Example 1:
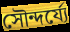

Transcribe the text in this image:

সৌন্দর্য্যে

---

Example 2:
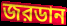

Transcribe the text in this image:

জরডান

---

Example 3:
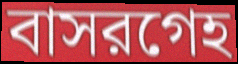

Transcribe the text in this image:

বাসরগেহ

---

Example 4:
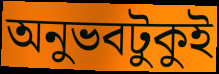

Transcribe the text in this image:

অনুভবটুকুই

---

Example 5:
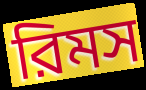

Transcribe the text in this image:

রিমস